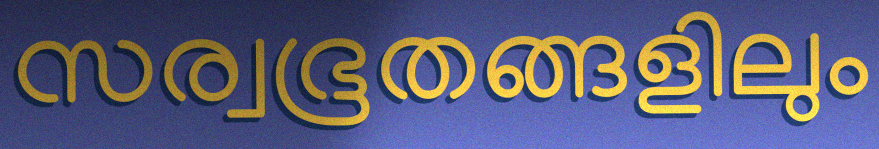
സര്വഭൂതങ്ങളിലും